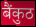
बैंकुठ